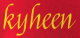
kyheen